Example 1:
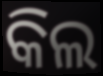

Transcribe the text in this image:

କିଲ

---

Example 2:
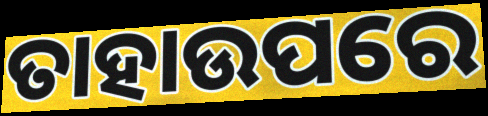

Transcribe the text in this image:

ତାହାଉପରେ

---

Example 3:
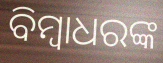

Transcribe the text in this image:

ବିମ୍ବାଧରଙ୍କ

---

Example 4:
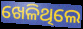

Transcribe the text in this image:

ଖେଳିଥିଲେ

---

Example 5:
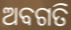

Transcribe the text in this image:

ଅବଗତି